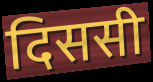
दिससी